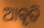
ଆଵୃତି